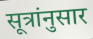
सूत्रांनुसार